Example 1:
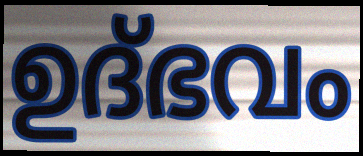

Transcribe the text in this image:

ഉദ്ഭവം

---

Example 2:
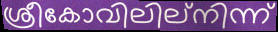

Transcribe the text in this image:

ശ്രീകോവിലില്നിന്ന്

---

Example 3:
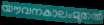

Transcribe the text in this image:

യൗവനകാലംമുതൽ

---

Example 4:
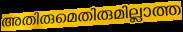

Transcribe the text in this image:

അതിരുമെതിരുമില്ലാത്ത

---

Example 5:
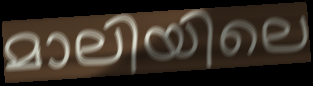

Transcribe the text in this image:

മാലിയിലെ